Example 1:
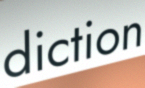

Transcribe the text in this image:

diction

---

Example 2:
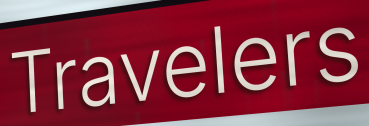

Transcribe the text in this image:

Travelers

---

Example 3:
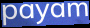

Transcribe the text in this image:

payam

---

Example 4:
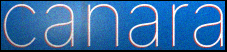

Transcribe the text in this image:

canara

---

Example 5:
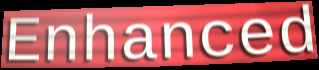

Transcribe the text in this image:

Enhanced